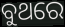
ବୁଥରେ